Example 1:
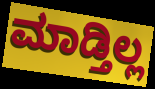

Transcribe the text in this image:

ಮಾಡ್ತಿಲ್ಲ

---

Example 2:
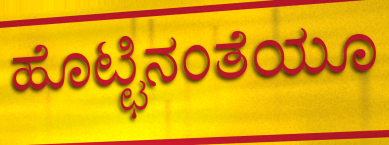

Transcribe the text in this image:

ಹೊಟ್ಟಿನಂತೆಯೂ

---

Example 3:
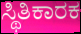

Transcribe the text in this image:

ಸ್ಥಿತಿಕಾರಕ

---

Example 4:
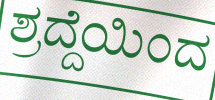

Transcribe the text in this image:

ಶ್ರದ್ದೆಯಿಂದ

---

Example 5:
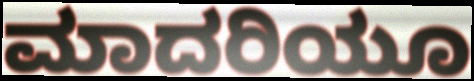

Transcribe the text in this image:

ಮಾದರಿಯೂ